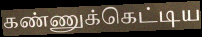
கண்ணுக்கெட்டிய